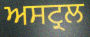
ਅਸਟ੍ਰਲ